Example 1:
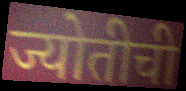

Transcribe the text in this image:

ज्योतीची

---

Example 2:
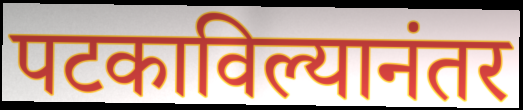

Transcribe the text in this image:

पटकाविल्यानंतर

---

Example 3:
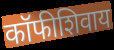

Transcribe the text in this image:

कॉफीशिवाय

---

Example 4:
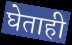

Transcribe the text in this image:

घेताही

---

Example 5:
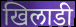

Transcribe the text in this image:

खिलाडी